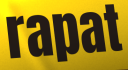
rapat